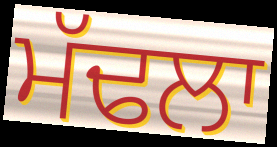
ਮੱਢਲਾ